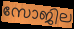
സോജില